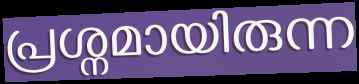
പ്രശ്നമായിരുന്ന